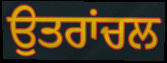
ਉਤਰਾਂਚਲ